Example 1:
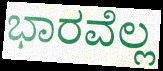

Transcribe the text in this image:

ಭಾರವೆಲ್ಲ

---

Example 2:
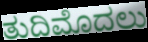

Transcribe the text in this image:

ತುದಿಮೊದಲು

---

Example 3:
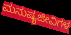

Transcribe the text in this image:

ಮನುಷ್ಯಜೀವಿಗಳ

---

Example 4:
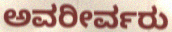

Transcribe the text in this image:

ಅವರೀರ್ವರು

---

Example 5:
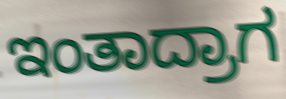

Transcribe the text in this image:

ಇಂತಾದ್ರಾಗ